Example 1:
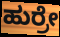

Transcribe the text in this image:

ಹುರ್ರೇ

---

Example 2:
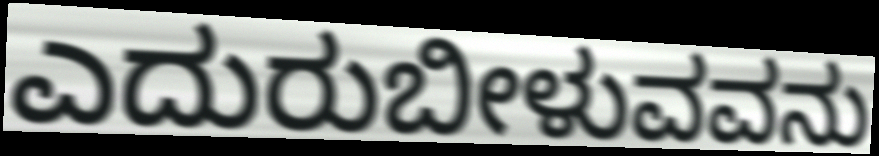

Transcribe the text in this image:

ಎದುರುಬೀಳುವವನು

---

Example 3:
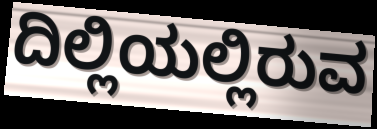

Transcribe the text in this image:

ದಿಲ್ಲಿಯಲ್ಲಿರುವ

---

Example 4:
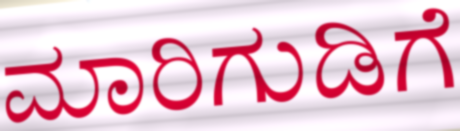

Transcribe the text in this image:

ಮಾರಿಗುಡಿಗೆ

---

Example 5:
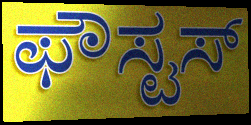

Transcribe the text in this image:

ಫೌಸ್ಟಸ್